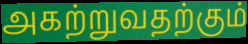
அகற்றுவதற்கும்